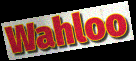
Wahloo